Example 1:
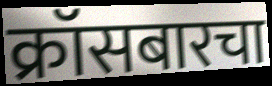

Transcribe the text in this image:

क्रॉसबारचा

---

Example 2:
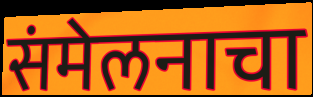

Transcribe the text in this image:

संमेलनाचा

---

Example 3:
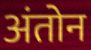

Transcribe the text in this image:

अंतोन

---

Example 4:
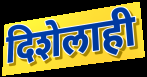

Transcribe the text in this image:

दिशेलाही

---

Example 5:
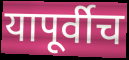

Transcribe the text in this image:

यापूर्वीच